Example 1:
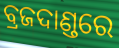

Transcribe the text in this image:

ବ୍ରଜଦାଣ୍ଡରେ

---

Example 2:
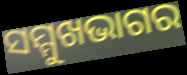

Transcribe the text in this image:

ସମ୍ମୁଖଭାଗର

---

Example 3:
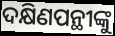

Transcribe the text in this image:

ଦକ୍ଷିଣପନ୍ଥୀଙ୍କୁ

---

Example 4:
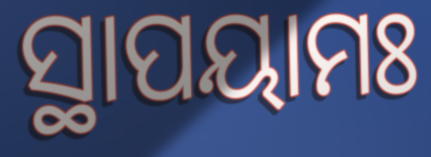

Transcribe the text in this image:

ସ୍ଥାପୟାମଃ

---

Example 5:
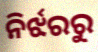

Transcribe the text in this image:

ନିର୍ଝରରୁ